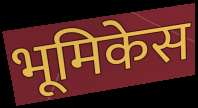
भूमिकेस